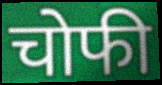
चोफी